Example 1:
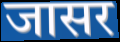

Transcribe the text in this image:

जासर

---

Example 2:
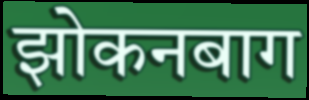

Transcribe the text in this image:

झोकनबाग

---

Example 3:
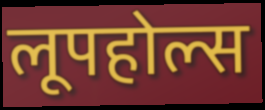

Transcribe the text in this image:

लूपहोल्स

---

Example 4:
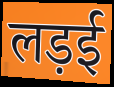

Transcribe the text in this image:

लड़ई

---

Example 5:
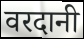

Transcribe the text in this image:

वरदानी